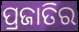
ପ୍ରଜାତିର